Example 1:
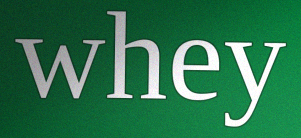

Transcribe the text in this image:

whey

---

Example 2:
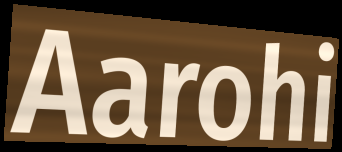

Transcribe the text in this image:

Aarohi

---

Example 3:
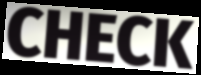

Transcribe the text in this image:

CHECK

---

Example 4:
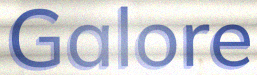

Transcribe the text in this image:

Galore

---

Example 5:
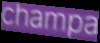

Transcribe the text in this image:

champa